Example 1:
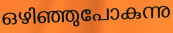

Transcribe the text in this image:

ഒഴിഞ്ഞുപോകുന്നു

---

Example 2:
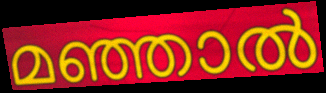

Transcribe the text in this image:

മഞ്ഞാൽ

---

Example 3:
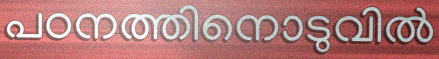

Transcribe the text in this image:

പഠനത്തിനൊടുവിൽ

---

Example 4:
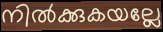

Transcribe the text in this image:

നിൽക്കുകയല്ലേ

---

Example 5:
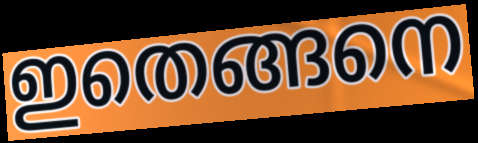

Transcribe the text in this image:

ഇതെങ്ങനെ